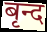
बृन्द